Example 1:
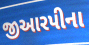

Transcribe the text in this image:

જીઆરપીના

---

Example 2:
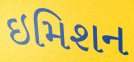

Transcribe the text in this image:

ઇમિશન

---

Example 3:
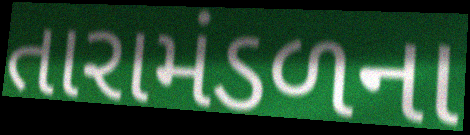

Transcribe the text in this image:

તારામંડળના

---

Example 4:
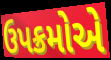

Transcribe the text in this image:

ઉપક્રમોએ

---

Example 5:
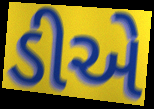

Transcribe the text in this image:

ડીએ